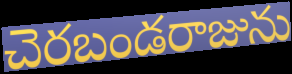
చెరబండరాజును